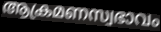
ആക്രമണസ്വഭാവം